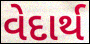
વેદાર્થ